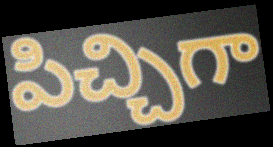
పిచ్చిగా